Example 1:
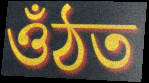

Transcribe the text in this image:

ওঁঠত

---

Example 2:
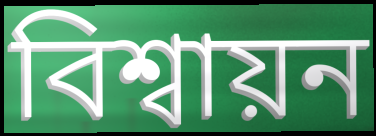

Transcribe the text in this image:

বিশ্বায়ন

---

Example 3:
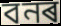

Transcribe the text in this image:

বনৰ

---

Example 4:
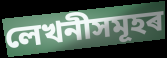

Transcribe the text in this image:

লেখনীসমূহৰ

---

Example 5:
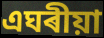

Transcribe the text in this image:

এঘৰীয়া